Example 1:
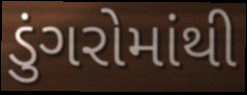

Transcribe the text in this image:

ડુંગરોમાંથી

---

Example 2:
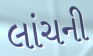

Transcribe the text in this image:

લાંચની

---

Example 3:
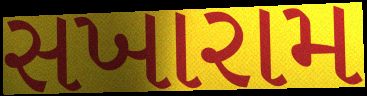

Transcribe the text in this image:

સખારામ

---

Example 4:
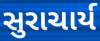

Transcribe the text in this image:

સુરાચાર્ય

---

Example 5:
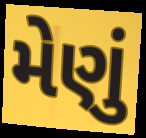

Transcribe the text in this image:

મેણું